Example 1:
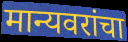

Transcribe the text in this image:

मान्यवरांचा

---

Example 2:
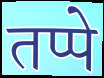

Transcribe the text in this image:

तप्पे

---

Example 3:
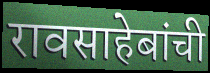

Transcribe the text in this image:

रावसाहेबांची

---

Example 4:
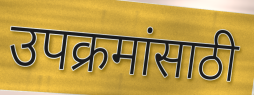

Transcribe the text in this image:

उपक्रमांसाठी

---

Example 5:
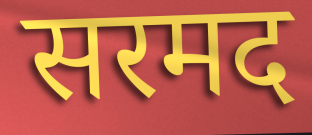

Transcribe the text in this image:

सरमद